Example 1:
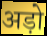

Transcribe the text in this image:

अड़ो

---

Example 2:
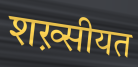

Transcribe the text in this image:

शख़्सीयत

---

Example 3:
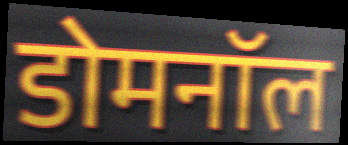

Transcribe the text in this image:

डोमनॉल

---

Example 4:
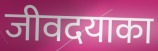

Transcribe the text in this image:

जीवदयाका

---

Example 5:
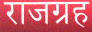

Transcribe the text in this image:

राजग्रह